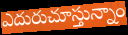
ఎదురుచూస్తున్నాం